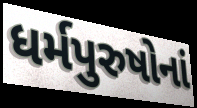
ધર્મપુરુષોનાં